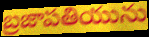
బ్రజాపతియును